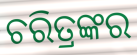
ଚରିତ୍ରଙ୍କର